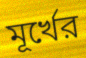
মূর্খের